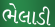
ભેલાડી